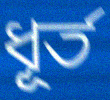
ধূৰ্ত